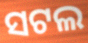
ସଟଲ